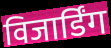
विजार्डिंग